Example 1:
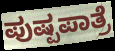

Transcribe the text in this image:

ಪುಷ್ಪಪಾತ್ರೆ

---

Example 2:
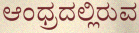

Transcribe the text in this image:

ಆಂಧ್ರದಲ್ಲಿರುವ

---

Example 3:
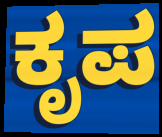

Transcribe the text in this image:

ಕೃಪ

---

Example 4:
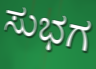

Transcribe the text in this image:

ಸುಭಗ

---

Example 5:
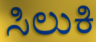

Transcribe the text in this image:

ಸಿಲುಕಿ